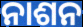
ନାଶନ